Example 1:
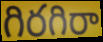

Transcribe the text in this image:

గిరగిరా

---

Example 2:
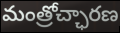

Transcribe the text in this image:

మంత్రోచ్ఛారణ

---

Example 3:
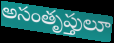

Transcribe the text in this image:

అసంతృప్తులూ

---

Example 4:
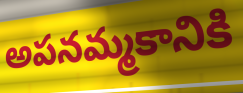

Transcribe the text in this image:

అపనమ్మకానికి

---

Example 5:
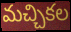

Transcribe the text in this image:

మచ్చికల